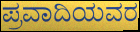
ಪ್ರವಾದಿಯವರ